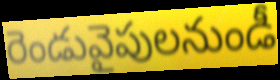
రెండువైపులనుండీ